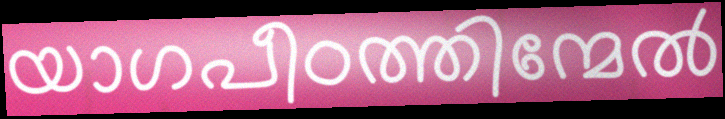
യാഗപീഠത്തിന്മേൽ